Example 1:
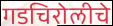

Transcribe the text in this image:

गडचिरोलीचे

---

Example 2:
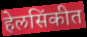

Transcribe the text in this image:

हेलसिंकीत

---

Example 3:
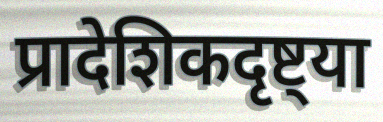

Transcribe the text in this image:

प्रादेशिकदृष्ट्या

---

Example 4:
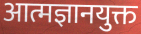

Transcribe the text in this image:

आत्मज्ञानयुक्त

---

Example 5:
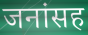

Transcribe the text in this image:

जनांसह